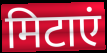
मिटाएं